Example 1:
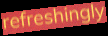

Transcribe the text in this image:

refreshingly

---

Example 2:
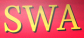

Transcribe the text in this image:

SWA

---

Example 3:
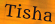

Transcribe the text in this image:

Tisha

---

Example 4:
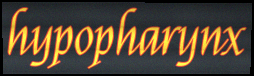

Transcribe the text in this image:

hypopharynx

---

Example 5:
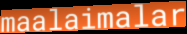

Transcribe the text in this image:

maalaimalar